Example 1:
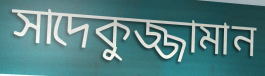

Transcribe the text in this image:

সাদেকুজ্জামান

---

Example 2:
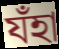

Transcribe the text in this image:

যঁহা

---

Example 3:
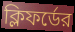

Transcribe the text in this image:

ক্লিফর্ডের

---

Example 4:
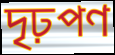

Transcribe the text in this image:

দৃঢ়পণ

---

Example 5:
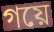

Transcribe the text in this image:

গয়ে